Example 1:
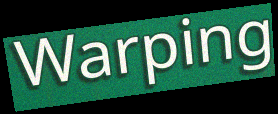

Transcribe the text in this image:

Warping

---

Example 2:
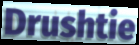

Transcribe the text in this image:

Drushtie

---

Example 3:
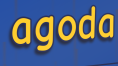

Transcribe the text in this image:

agoda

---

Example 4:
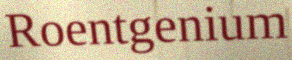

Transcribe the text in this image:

Roentgenium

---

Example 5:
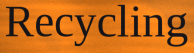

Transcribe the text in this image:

Recycling